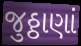
જુઠ્ઠાણાં